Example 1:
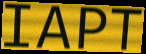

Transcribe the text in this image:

IAPT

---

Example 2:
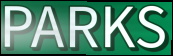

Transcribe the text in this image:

PARKS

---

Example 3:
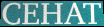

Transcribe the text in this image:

CEHAT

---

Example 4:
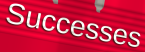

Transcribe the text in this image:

Successes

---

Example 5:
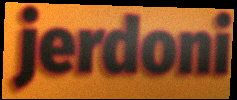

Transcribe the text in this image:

jerdoni